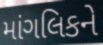
માંગલિકને